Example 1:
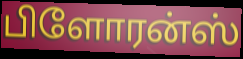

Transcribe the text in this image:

பிளோரன்ஸ்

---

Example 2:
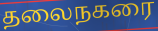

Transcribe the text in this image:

தலைநகரை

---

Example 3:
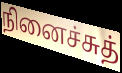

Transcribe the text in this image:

நினைச்சுத்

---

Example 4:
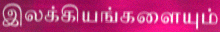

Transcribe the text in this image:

இலக்கியங்களையும்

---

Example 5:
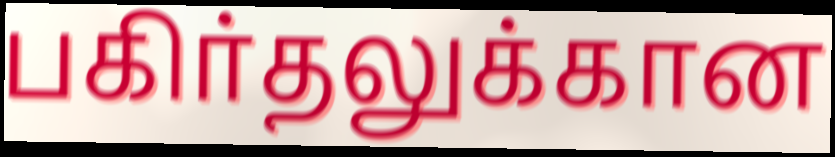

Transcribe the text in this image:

பகிர்தலுக்கான